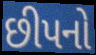
છીપનો